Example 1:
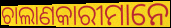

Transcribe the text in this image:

ଚାଲାଣକାରୀମାନେ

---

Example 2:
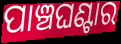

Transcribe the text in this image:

ପାଞ୍ଚଘଣ୍ଟାର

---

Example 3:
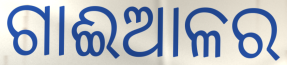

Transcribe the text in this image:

ଗାଈଆଳର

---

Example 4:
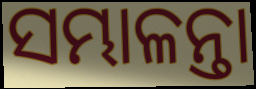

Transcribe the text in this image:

ସମ୍ଭାଳନ୍ତା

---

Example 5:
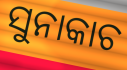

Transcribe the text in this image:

ସୁନାକାଚ